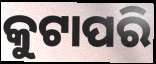
କୁଟାପରି